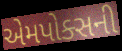
એમપોક્સની